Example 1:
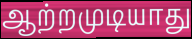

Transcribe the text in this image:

ஆற்றமுடியாது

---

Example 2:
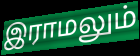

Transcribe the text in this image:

இராமலும்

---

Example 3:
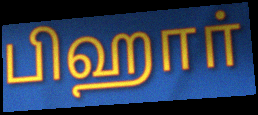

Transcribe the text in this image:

பிஹார்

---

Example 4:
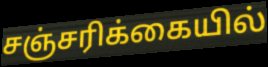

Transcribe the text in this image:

சஞ்சரிக்கையில்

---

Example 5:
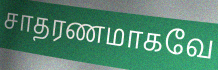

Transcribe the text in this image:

சாதரணமாகவே